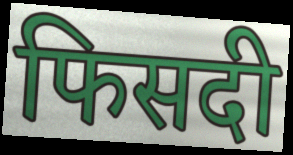
फिसदी